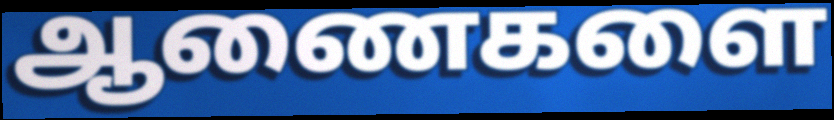
ஆணைகளை